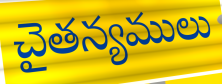
చైతన్యములు